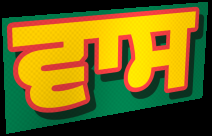
ਵਾਸ